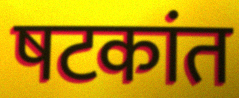
षटकांत